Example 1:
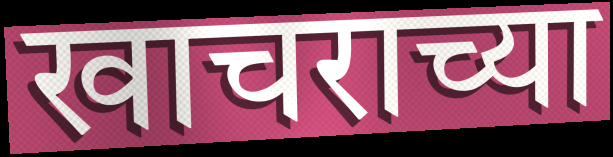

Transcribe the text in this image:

खाचराच्या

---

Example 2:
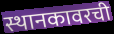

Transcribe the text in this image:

स्थानकावरची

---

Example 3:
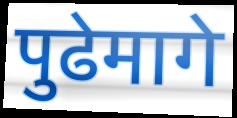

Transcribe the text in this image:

पुढेमागे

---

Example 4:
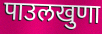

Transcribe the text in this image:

पाउलखुणा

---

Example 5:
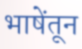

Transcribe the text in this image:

भाषेंतून